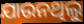
ଯାଉନଥିଲୁ